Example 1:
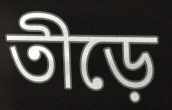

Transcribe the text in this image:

তীড়ে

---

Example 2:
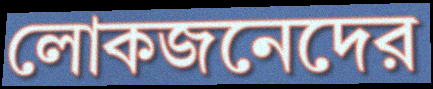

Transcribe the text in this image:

লোকজনেদের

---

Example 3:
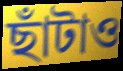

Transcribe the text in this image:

ছাঁটাও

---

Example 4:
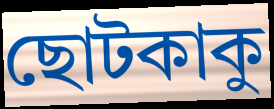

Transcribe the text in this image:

ছোটকাকু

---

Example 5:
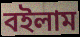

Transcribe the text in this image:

বইলাম